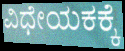
ವಿಧೇಯಕಕ್ಕೆ